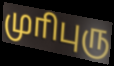
முரிபுரு